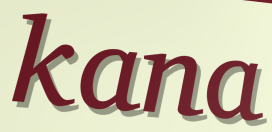
kana